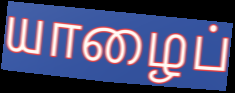
யாழைப்